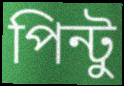
পিন্টু